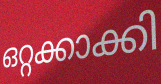
ഒറ്റക്കാക്കി